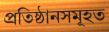
প্ৰতিষ্ঠানসমূহত